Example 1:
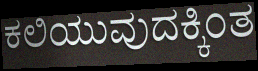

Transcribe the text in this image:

ಕಲಿಯುವುದಕ್ಕಿಂತ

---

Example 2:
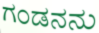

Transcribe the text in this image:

ಗಂಡನನು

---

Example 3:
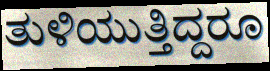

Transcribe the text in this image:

ತುಳಿಯುತ್ತಿದ್ದರೂ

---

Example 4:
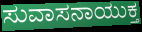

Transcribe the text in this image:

ಸುವಾಸನಾಯುಕ್ತ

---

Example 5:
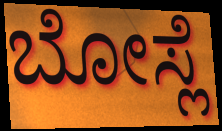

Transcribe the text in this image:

ಬೋಸ್ಲೆ